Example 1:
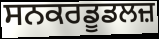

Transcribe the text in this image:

ਸਨਕਰਡੂਡਲਜ਼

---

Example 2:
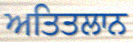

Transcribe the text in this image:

ਅਤਿਤਲਾਨ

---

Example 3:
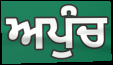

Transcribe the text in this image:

ਅਪੁੰਚ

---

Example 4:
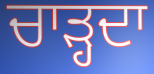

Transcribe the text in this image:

ਚਾੜ੍ਹਦਾ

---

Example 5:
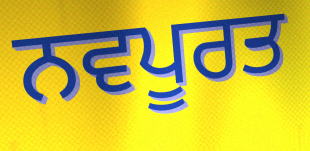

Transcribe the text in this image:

ਨਵਪੂਰਤ